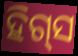
ହିଗ୍‌ସ